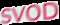
SVOD